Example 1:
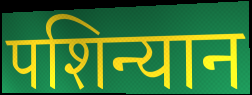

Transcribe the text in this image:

पशिन्यान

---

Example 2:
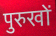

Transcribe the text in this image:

पुरुखों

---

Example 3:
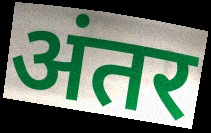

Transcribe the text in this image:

अंतर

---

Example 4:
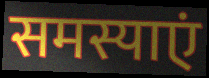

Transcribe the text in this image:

समस्याएं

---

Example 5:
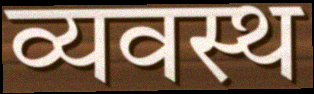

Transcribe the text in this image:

व्यवस्थ